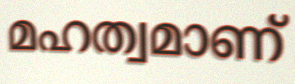
മഹത്വമാണ്